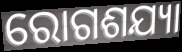
ରୋଗଶଯ୍ୟା